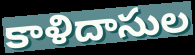
కాళిదాసుల